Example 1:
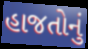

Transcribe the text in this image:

હાજતોનું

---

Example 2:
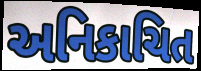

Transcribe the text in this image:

અનિકાચિત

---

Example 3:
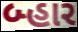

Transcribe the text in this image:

બ્હાર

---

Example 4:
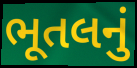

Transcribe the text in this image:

ભૂતલનું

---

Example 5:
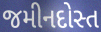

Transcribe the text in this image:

જમીનદોસ્ત